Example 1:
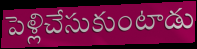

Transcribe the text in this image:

పెళ్లిచేసుకుంటాడు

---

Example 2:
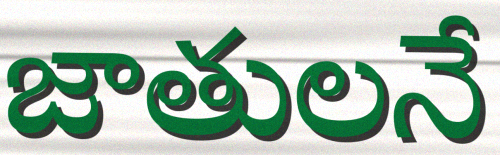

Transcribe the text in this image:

జాతులనే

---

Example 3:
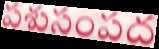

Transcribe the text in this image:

పశుసంపద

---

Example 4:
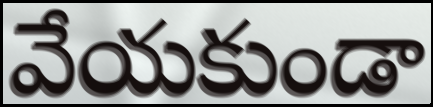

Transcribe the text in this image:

వేయకుండా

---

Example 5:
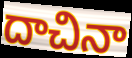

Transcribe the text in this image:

దాచినా